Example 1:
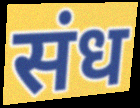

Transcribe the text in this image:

संध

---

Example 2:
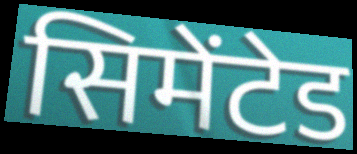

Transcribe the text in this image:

सिमेंटेड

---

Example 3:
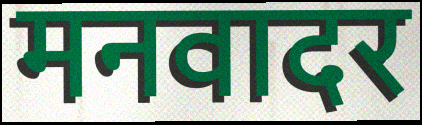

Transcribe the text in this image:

मनवादर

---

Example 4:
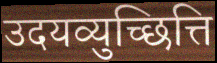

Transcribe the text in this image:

उदयव्युच्छित्ति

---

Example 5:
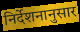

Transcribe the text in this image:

निर्देशनानुसार